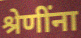
श्रेणींना